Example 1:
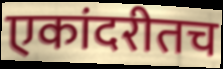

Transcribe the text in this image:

एकांदरीतच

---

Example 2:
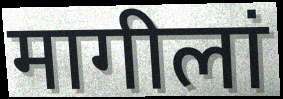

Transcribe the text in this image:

मागीलां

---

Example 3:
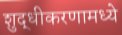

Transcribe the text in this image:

शुद्धीकरणामध्ये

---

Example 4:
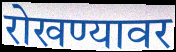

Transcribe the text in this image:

रोखण्यावर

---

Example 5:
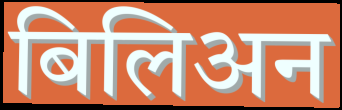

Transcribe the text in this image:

बिलिअन